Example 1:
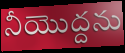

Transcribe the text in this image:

నీయొద్దను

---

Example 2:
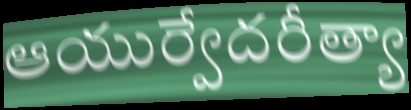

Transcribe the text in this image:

ఆయుర్వేదరీత్యా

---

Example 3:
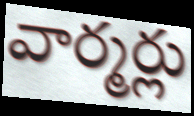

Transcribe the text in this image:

వార్మర్లు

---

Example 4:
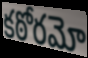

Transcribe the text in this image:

కఠోరమో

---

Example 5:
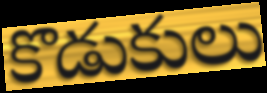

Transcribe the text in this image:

కొడుకులు